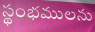
స్థంభములను